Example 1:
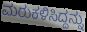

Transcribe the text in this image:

ಮರುಕಳಿಸಿದ್ದನ್ನು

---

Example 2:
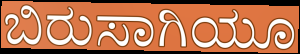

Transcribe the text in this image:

ಬಿರುಸಾಗಿಯೂ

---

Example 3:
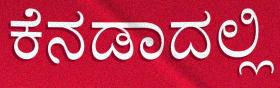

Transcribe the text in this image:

ಕೆನಡಾದಲ್ಲಿ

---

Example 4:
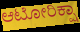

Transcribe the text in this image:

ಆಟೋರಿಕ್ಷಾ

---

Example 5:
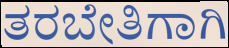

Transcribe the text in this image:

ತರಬೇತಿಗಾಗಿ